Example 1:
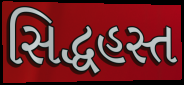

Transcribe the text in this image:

સિદ્ધહસ્ત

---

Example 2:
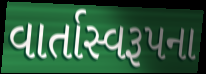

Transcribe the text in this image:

વાર્તાસ્વરૂપના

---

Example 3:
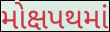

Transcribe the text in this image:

મોક્ષપથમાં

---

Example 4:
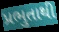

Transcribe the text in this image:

પ્રભુતાથી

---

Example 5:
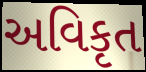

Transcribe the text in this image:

અવિકૃત